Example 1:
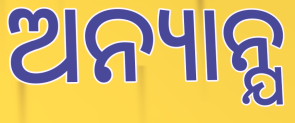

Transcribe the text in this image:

ଅନ୍ୟାନ୍ଯ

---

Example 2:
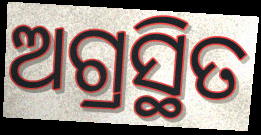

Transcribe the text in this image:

ଅଗ୍ରସ୍ଥିତ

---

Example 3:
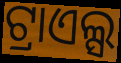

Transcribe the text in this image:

ଟ୍ରାଏଲ୍ସ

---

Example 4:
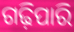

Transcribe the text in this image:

ଗଢ଼ିପାରି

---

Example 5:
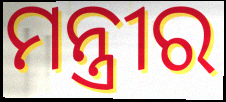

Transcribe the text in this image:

ମନ୍ତ୍ରୀର